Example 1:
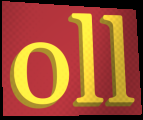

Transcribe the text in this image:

oll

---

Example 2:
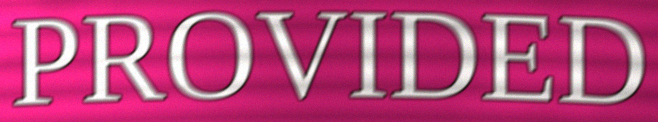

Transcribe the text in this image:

PROVIDED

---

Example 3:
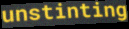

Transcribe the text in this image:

unstinting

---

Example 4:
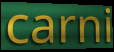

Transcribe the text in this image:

carni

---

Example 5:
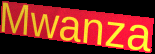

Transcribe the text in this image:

Mwanza